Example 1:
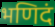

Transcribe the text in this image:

भणिदं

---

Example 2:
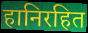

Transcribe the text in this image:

हानिरहित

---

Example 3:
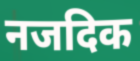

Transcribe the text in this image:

नजदिक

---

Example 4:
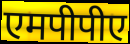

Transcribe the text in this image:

एमपीपीए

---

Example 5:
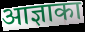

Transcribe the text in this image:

आज्ञाका